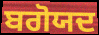
ਬਗੋਯਦ